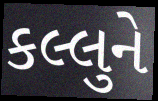
કલ્લુને